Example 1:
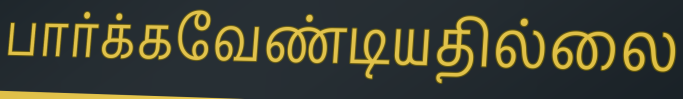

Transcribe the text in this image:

பார்க்கவேண்டியதில்லை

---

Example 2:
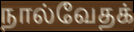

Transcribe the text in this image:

நால்வேதக்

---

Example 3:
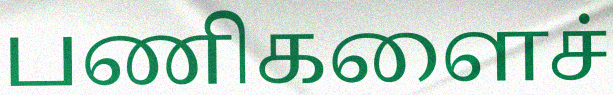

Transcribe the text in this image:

பணிகளைச்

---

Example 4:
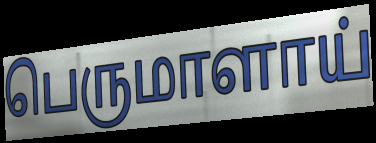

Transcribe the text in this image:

பெருமாளாய்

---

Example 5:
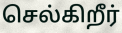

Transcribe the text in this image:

செல்கிறீர்